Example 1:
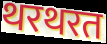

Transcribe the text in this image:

थरथरत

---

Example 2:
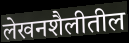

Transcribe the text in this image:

लेखनशैलीतील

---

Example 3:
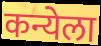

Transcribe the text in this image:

कन्येला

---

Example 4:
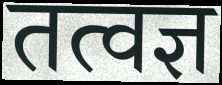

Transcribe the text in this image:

तत्वज्ञ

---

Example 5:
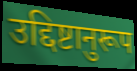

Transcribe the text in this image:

उद्दिष्टानुरूप